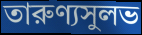
তারুণ্যসুলভ